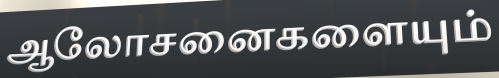
ஆலோசனைகளையும்